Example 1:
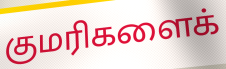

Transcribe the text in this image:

குமரிகளைக்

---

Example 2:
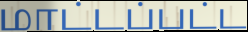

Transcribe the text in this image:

மாட்டப்பட்ட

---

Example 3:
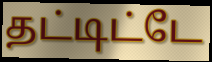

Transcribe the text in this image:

தட்டிட்டே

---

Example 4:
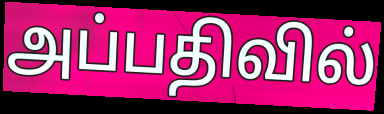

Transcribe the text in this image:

அப்பதிவில்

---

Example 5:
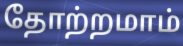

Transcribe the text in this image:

தோற்றமாம்